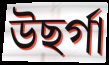
উছৰ্গা